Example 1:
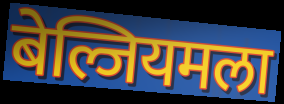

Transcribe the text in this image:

बेल्जियमला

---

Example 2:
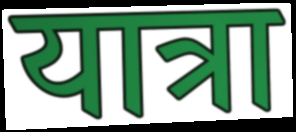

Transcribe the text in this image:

यात्रा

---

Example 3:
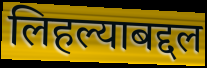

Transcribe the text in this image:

लिहल्याबद्दल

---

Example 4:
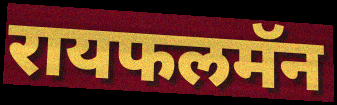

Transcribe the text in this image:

रायफलमॅन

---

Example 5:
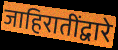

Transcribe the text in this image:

जाहिरातींद्वारे